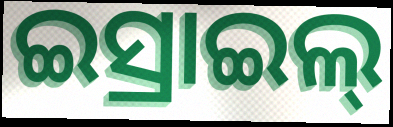
ଇସ୍ରାଇଲ୍